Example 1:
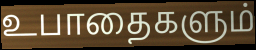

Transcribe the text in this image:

உபாதைகளும்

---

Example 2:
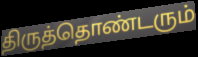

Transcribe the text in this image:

திருத்தொண்டரும்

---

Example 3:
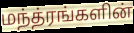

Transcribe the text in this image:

மந்த்ரங்களின்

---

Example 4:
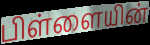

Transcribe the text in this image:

பிள்ளையின்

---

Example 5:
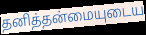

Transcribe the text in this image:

தனித்தன்மையுடைய